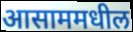
आसाममधील